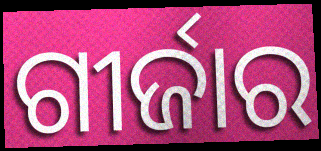
ଗୀର୍ଜାର